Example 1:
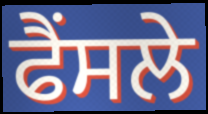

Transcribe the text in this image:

ਫੈਂਸਲੇ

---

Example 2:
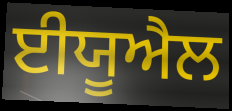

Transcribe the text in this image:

ਈਯੂਐਲ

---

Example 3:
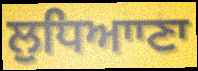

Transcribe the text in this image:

ਲੁਧਿਆਾਣਾ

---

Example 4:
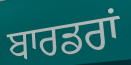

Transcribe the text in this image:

ਬਾਰਡਰਾਂ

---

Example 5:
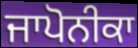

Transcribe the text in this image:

ਜਾਪੋਨੀਕਾ